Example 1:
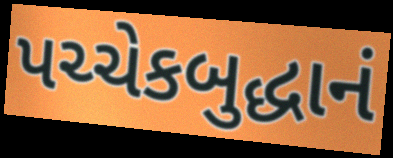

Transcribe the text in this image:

પચ્ચેકબુદ્ધાનં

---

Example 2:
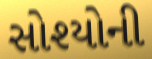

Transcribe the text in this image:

સોશ્યોની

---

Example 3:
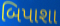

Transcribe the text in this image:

બિપાશા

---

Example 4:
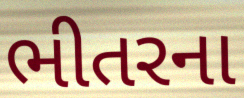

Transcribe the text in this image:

ભીતરના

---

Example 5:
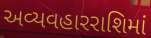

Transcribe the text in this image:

અવ્યવહારરાશિમાં